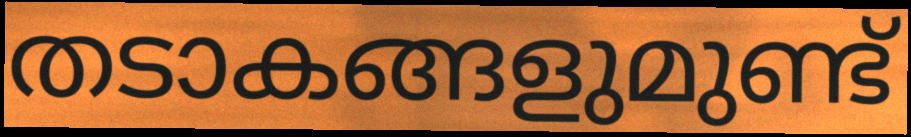
തടാകങ്ങളുമുണ്ട്